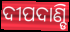
ଦୀପଦାଣ୍ଡି